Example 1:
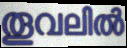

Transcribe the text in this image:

തൂവലിൽ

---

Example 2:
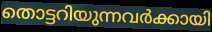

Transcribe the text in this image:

തൊട്ടറിയുന്നവർക്കായി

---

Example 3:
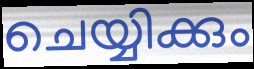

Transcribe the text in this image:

ചെയ്യിക്കും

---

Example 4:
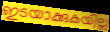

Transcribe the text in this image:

ഇടയാക്കുകയില്ല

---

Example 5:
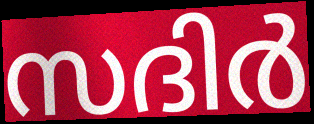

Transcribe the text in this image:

സദിർ